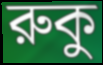
রুকু